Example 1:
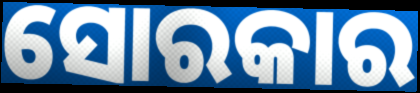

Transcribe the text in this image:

ସୋରକାର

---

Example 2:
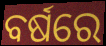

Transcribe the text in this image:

ବର୍ଷରେ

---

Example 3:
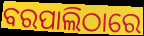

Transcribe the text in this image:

ବରପାଲିଠାରେ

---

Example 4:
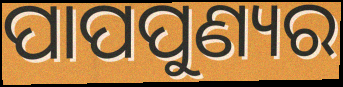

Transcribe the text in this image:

ପାପପୁଣ୍ୟର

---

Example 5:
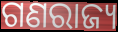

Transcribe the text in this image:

ଗଣରାଜ୍ୟ